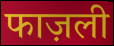
फाज़ली